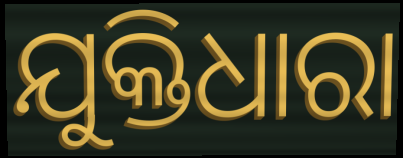
ଯୁକ୍ତିଧାରା